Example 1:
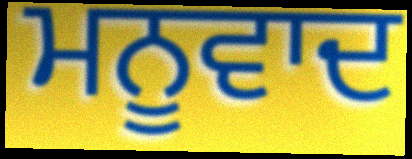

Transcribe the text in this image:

ਮਨੂਵਾਦ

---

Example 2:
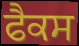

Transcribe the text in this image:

ਫੈਕਸ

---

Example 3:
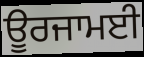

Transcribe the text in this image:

ਊਰਜਾਮਈ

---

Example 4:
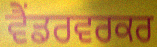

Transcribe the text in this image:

ਵੈਂਡਰਵਰਕਰ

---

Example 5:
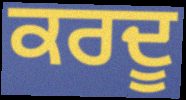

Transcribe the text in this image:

ਕਰਦੂ